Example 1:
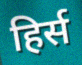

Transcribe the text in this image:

हिर्स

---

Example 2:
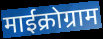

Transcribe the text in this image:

माईक्रोग्राम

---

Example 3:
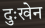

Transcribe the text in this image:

दुःखेन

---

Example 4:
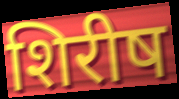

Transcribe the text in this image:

शिरीष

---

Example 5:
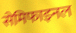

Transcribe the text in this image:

सेमिफाइनल